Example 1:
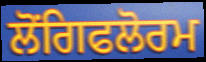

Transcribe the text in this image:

ਲੋਂਗਿਫਲੋਰਮ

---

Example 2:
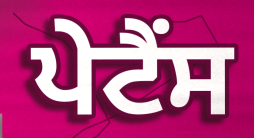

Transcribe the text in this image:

ਪੇਟੈਂਸ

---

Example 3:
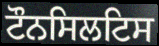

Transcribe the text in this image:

ਟੌਨਸਿਲਟਿਸ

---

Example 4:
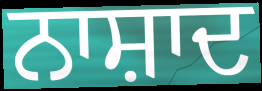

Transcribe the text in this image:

ਨਾਸ਼ਾਦ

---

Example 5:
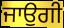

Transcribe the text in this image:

ਜਾਉਗੀ